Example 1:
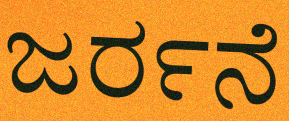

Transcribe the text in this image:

ಜರ್ರನೆ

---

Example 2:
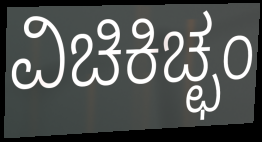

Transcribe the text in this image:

ವಿಚಿಕಿಚ್ಛಂ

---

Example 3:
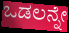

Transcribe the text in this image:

ಒಡಲನ್ನೇ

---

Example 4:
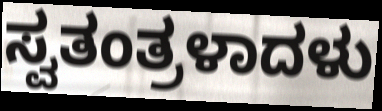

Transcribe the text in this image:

ಸ್ವತಂತ್ರಳಾದಳು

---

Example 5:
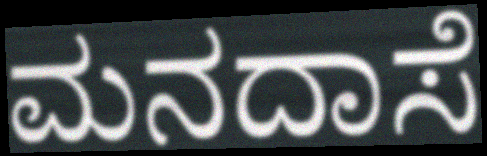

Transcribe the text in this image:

ಮನದಾಸೆ